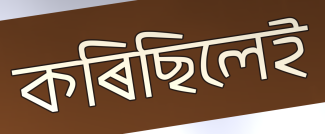
কৰিছিলেই